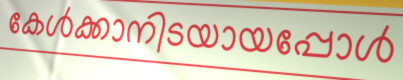
കേൾക്കാനിടയായപ്പോൾ